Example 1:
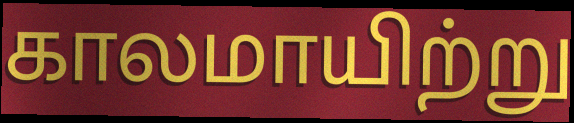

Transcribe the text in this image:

காலமாயிற்று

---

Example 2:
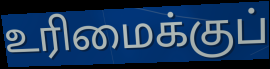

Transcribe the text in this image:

உரிமைக்குப்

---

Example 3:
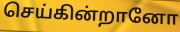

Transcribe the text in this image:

செய்கின்றானோ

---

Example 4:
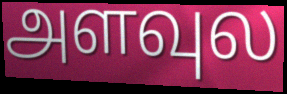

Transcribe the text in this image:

அளவுல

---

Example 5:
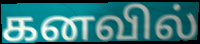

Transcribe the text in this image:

கனவில்